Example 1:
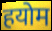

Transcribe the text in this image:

हयोम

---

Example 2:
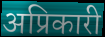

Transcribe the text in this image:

अप्रिकारी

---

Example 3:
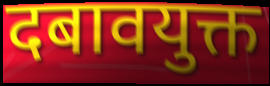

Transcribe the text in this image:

दबावयुक्त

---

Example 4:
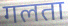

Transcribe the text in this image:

गलता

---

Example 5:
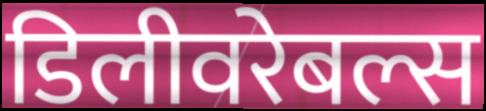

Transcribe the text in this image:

डिलीवरेबल्स